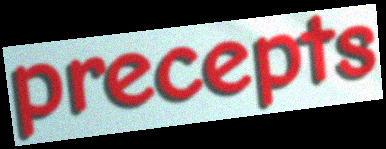
precepts